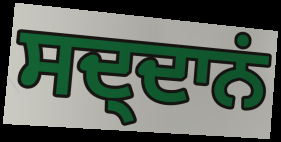
ਸਦ੍ਦਾਨਂ